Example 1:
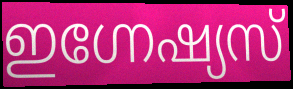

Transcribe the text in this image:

ഇഗ്നേഷ്യസ്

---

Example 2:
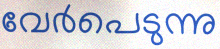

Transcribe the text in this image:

വേർപെടുന്നു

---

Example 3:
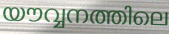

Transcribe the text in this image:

യൗവ്വനത്തിലെ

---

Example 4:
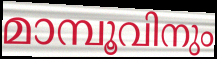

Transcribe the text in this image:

മാമ്പൂവിനും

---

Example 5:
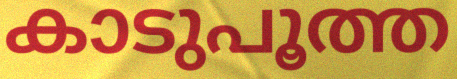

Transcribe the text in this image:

കാടുപൂത്ത